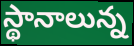
స్థానాలున్న